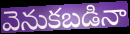
వెనుకబడినా